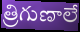
త్రిగుణాలే